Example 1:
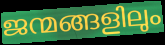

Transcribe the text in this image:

ജന്മങ്ങളിലും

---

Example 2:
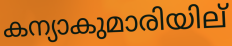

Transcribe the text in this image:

കന്യാകുമാരിയില്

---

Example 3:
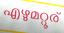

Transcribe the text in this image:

എഴുമറ്റൂര്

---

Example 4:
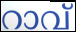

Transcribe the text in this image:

റാവ്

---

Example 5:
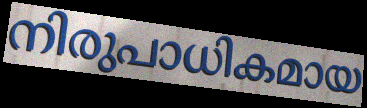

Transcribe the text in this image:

നിരുപാധികമായ